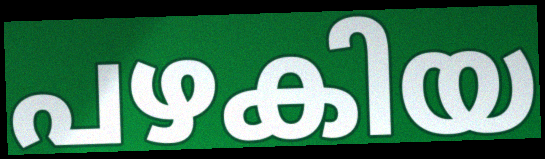
പഴകിയ